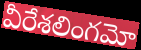
వీరేశలింగమో